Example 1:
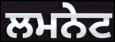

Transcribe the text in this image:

ਲਮਨੇਟ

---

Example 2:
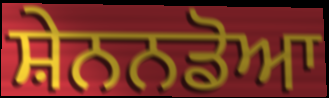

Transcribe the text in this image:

ਸ਼ੇਨਨਡੋਆ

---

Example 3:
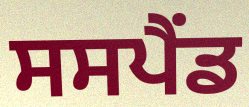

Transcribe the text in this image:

ਸਸਪੈੰਡ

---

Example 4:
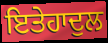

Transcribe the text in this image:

ਇਤੇਹਾਦੁਲ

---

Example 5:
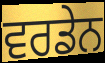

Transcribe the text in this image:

ਵਰਡੇਨ